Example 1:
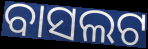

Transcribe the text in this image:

ବାସଲଟ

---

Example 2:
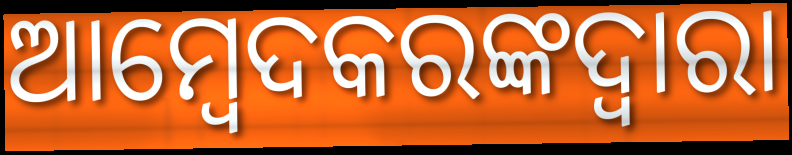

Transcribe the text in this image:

ଆମ୍ବେଦକରଙ୍କଦ୍ୱାରା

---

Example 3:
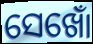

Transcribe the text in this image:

ସେଖୋଁ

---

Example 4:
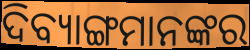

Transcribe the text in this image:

ଦିବ୍ୟାଙ୍ଗମାନଙ୍କର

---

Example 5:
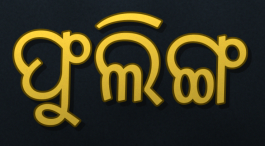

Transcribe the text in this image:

ଫୁଲିଙ୍ଗ